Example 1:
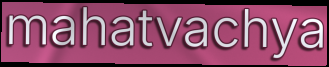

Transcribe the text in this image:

mahatvachya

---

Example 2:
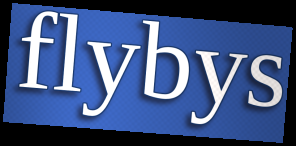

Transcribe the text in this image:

flybys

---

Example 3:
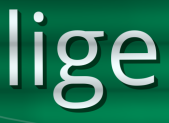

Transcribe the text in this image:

lige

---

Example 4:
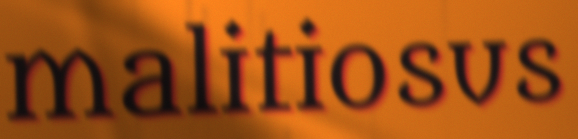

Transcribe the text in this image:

malitiosus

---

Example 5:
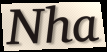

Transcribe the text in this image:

Nha